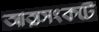
আত্মসংকটে